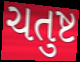
ચતુષ્ટ